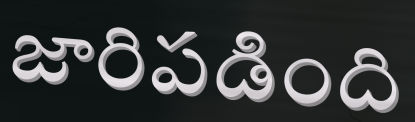
జారిపడింది